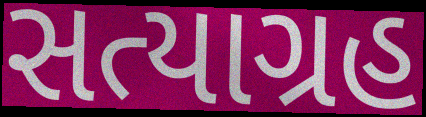
સત્યાગ્રહ